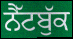
ਨੈੱਟਬੁੱਕ